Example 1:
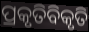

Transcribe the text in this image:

ପ୍ରକୃତିବିକୃତି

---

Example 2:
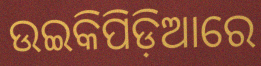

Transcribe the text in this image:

ଉଇକିପିଡ଼ିଆରେ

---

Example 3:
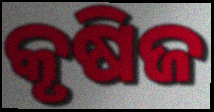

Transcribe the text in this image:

କୃଷିଜ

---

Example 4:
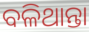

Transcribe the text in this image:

ବଳିଥାନ୍ତା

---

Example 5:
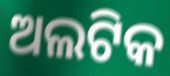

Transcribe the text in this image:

ଅଲଟିକ